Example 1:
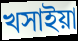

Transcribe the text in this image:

খসাইয়া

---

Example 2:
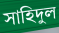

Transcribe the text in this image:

সাহিদুল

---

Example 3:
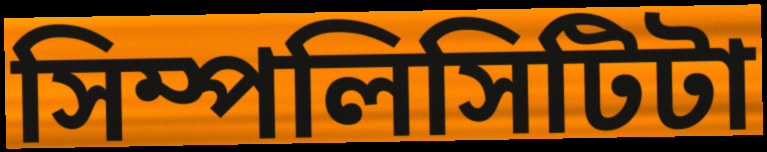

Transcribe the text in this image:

সিম্পলিসিটিটা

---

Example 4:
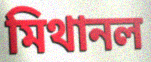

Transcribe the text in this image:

মিথানল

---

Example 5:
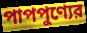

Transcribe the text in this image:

পাপপুণ্যের